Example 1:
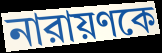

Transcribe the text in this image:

নারায়ণকে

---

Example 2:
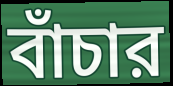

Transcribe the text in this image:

বাঁচার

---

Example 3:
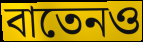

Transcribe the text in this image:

বাতেনও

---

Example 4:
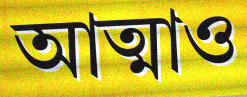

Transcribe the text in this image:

আত্মাও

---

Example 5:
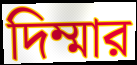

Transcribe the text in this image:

দিম্মার